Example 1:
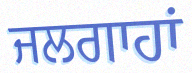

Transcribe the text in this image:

ਜਲਗਾਹਾਂ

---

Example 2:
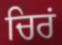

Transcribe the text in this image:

ਚਿਰਂ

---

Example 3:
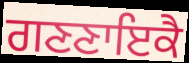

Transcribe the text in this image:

ਗਣਣਾਇਕੈ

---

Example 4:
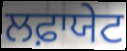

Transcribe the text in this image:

ਲਫ਼ਾਯੇਟ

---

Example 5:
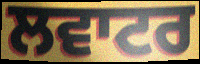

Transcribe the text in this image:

ਲਵਾਟਰ